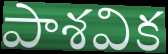
పాశవిక